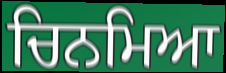
ਚਿਨਮਿਆ